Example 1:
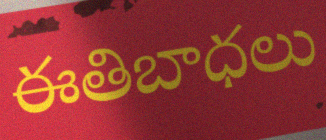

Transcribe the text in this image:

ఈతిబాధలు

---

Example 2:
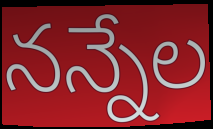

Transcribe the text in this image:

నన్నేల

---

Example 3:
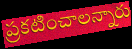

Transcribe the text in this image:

ప్రకటించాలన్నారు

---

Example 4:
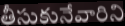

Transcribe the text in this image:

తీసుకునేవారిని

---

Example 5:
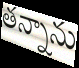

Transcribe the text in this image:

తన్నాను